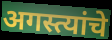
अगस्त्यांचे